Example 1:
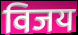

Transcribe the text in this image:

विजय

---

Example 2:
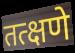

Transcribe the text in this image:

तत्क्षणे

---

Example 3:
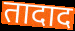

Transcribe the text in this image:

तादाद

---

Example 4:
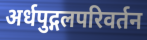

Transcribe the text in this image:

अर्धपुद्गलपरिवर्तन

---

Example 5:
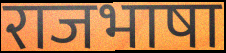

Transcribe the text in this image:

राजभाषा